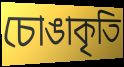
চোঙাকৃতি